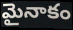
మైనాకం